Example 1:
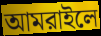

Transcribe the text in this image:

আমরাইলে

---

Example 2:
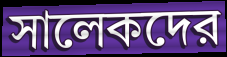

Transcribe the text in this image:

সালেকদের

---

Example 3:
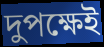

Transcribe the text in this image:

দুপক্ষেই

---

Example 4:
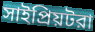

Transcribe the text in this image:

সাইপ্রিয়টরা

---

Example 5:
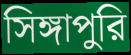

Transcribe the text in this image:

সিঙ্গাপুরি